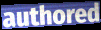
authored